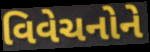
વિવેચનોને